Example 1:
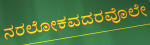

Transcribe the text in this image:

ನರಲೋಕವದರವೊಲೇ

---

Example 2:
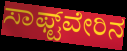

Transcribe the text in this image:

ಸಾಫ್ಟ್‌ವೇರಿನ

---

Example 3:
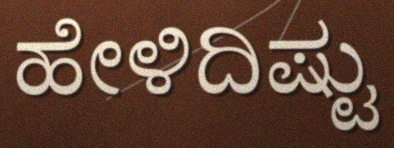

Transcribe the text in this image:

ಹೇಳಿದಿಷ್ಟು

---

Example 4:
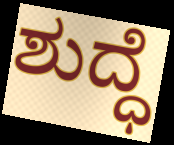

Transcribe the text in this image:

ಶುದ್ಧೆ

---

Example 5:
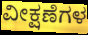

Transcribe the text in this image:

ವೀಕ್ಷಣೆಗಳ